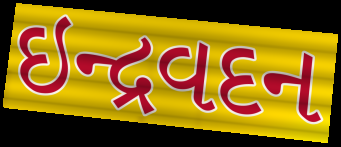
ઇન્દ્રવદન